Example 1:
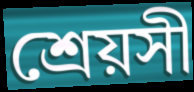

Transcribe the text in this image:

শ্রেয়সী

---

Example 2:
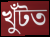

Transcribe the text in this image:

খুঁটত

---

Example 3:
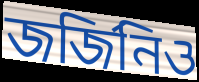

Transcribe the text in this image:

জর্জিনিও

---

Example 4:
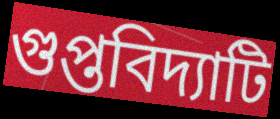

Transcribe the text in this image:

গুপ্তবিদ্যাটি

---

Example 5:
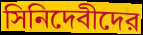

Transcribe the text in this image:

সিনিদেবীদের